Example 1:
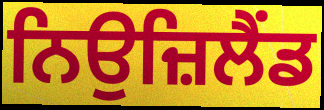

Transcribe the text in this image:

ਨਿਉਜ਼ਿਲੈਂਡ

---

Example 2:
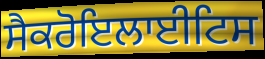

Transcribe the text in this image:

ਸੈਕਰੋਇਲਾਈਟਿਸ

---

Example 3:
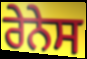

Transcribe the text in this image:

ਰੇਨੇਸ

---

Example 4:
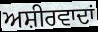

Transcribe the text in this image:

ਅਸ਼ੀਰਵਾਦਾਂ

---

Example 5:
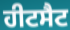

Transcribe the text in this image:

ਹੀਟਸੈਟ